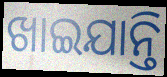
ଖାଇଯାନ୍ତି